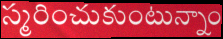
స్మరించుకుంటున్నాం